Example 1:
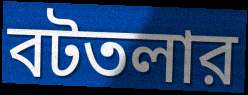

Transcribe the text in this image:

বটতলার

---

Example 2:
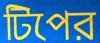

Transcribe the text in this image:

টিপের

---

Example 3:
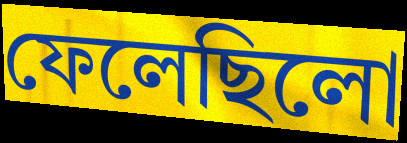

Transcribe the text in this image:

ফেলেছিলো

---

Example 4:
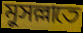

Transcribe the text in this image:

মুসল্লাতে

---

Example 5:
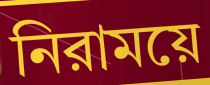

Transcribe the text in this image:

নিরাময়ে